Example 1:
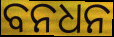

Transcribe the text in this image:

ବନଧନ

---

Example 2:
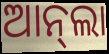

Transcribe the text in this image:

ଆନ୍‌ଲା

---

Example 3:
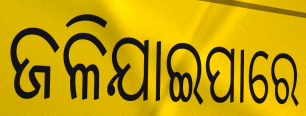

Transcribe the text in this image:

ଜଳିଯାଇପାରେ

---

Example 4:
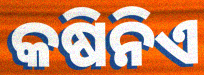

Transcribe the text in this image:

କଷିନିଏ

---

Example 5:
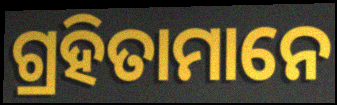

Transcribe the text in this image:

ଗ୍ରହିତାମାନେ